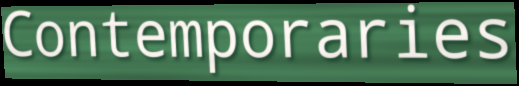
Contemporaries